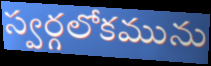
స్వర్గలోకమును